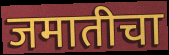
जमातीचा